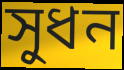
সুধন